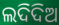
ଲଦିଦିଅ